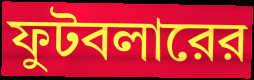
ফুটবলারের